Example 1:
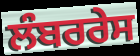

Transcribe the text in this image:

ਲੰਬਰਰੇਸ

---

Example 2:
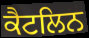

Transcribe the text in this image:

ਕੈਟਲਿਨ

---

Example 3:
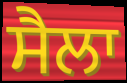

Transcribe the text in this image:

ਸੈਲਾ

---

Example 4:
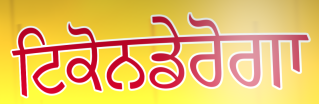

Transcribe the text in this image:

ਟਿਕੋਨਡੇਰੋਗਾ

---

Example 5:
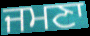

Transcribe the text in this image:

ਜਮਣਾ